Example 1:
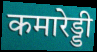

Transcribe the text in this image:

कमारेड्डी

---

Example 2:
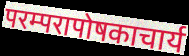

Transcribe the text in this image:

परम्परापोषकाचार्य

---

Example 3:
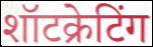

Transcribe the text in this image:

शॉटक्रेटिंग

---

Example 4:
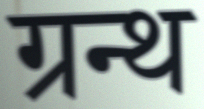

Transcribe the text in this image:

ग्रन्थ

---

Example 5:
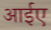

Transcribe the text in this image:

आईए